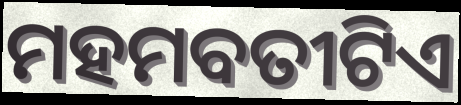
ମହମବତୀଟିଏ